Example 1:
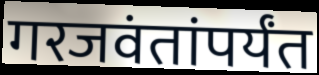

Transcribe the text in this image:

गरजवंतांपर्यंत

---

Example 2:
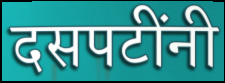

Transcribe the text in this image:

दसपटींनी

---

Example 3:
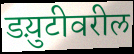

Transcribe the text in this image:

डय़ुटीवरील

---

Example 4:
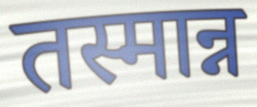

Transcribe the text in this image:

तस्मान्न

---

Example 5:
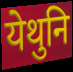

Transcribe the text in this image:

येथुनि